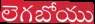
లెగబోయు